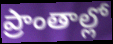
ప్రాంతాల్లో